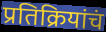
प्रतिक्रियांचं